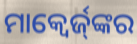
ମାକ୍ୱେର୍ଜ୍‌ଙ୍କର